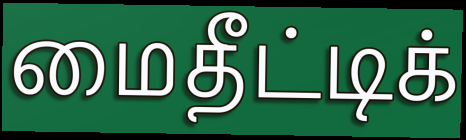
மைதீட்டிக்